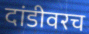
दांडीवरच